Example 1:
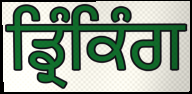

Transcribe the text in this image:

ਡ੍ਰਿੰਕਿੰਗ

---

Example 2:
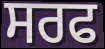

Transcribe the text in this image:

ਸਰਫ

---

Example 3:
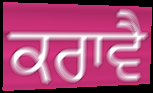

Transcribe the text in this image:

ਕਰਾਵੈ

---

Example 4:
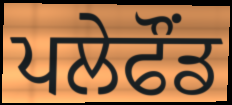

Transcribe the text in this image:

ਪਲੇਫੌਂਡ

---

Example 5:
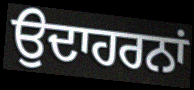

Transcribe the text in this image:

ਉਦਾਹਰਨਾਂ